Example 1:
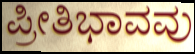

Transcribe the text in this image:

ಪ್ರೀತಿಭಾವವು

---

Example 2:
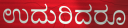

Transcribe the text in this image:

ಉದುರಿದರೂ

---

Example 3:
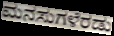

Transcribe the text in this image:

ಮನಸುಗಳೆರಡು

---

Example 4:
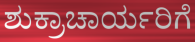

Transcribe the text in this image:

ಶುಕ್ರಾಚಾರ್ಯರಿಗೆ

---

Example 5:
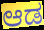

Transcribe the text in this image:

ಆಡ